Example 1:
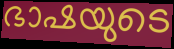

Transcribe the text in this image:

ഭാഷയുടെ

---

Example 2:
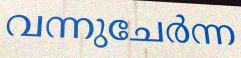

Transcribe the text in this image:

വന്നുചേർന്ന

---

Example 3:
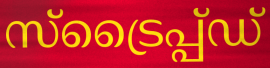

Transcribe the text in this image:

സ്ട്രൈപ്പ്ഡ്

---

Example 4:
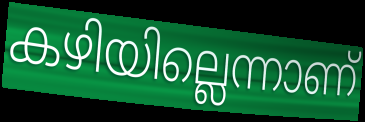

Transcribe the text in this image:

കഴിയില്ലെന്നാണ്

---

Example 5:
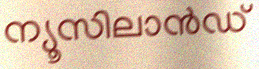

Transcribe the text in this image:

ന്യൂസിലാൻഡ്